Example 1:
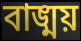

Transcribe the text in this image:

বাঙ্ময়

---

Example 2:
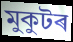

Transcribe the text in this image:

মুকুটৰ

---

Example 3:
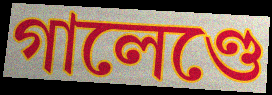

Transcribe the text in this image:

গালেণ্ডে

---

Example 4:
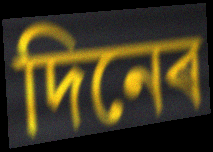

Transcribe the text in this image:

দিনেৰ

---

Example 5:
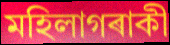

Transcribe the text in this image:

মহিলাগৰাকী